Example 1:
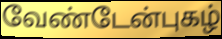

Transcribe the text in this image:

வேண்டேன்புகழ்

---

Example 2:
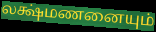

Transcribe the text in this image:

லக்ஷ்மணனையும்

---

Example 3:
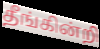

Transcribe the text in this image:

தீங்கின்றி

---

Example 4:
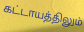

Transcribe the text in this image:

கட்டாயத்திலும்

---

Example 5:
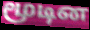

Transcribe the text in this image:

மூடின